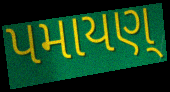
પમાયણ્